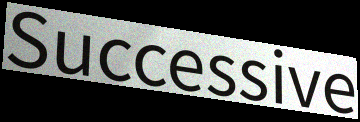
Successive